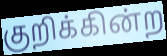
குறிக்கின்ற